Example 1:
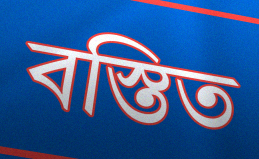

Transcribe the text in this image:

বস্তিত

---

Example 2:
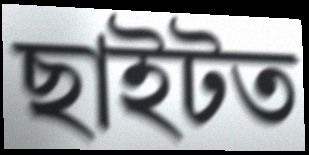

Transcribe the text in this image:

ছাইটত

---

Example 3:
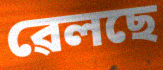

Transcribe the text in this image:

ৱেলছে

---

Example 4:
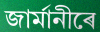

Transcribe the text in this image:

জাৰ্মানীৰে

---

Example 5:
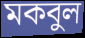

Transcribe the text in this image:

মকবুল